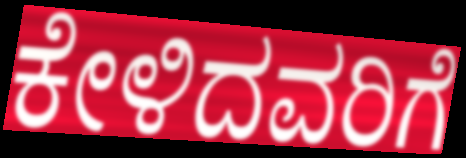
ಕೇಳಿದವರಿಗೆ